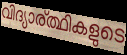
വിദ്യാര്ത്ഥികളുടെ